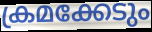
ക്രമക്കേടും